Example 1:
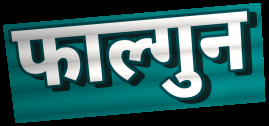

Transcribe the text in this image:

फाल्गुन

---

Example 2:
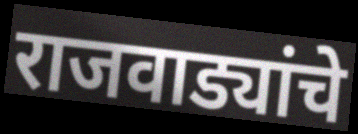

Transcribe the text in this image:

राजवाड्यांचे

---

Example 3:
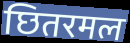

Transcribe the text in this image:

छितरमल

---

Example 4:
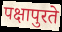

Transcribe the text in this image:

पक्षापुरते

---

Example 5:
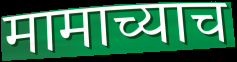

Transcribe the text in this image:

मामाच्याच